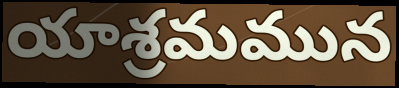
యాశ్రమమున